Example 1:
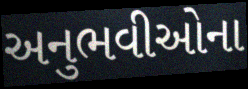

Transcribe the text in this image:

અનુભવીઓના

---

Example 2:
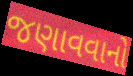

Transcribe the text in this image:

જણાવવાનો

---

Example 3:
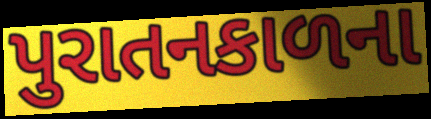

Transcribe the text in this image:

પુરાતનકાળના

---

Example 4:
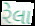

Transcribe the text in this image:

રેલા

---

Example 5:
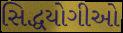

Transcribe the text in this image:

સિદ્ધયોગીઓ